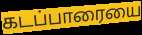
கடப்பாரையை